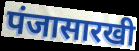
पंजासारखी